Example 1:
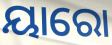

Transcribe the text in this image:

ୟାରୋ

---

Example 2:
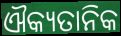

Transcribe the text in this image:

ଐକ୍ୟତାନିକ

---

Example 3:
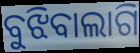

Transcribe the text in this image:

ବୁଝିବାଲାଗି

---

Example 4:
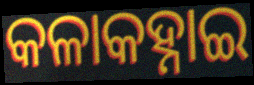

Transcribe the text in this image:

କଳାକହ୍ନାଇ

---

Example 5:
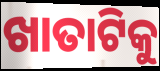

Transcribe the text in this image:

ଖାତାଟିକୁ